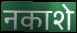
नकाशे